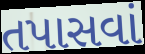
તપાસવાં